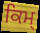
ਕਿਮ੍